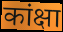
कांक्षा